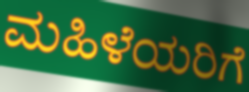
ಮಹಿಳೆಯರಿಗೆ